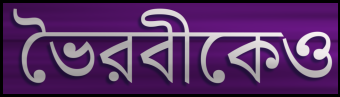
ভৈরবীকেও